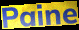
Paine